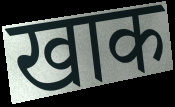
खाक